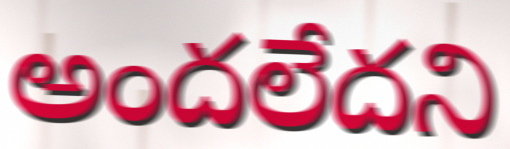
అందలేదని